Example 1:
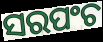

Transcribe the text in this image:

ସରପଂଚ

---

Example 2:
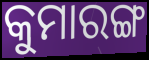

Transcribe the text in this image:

କୁମାରଙ୍ଗ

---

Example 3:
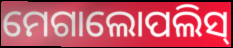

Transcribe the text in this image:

ମେଗାଲୋପଲିସ୍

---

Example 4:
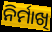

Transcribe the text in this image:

ନିର୍ମାଖି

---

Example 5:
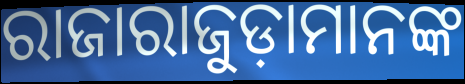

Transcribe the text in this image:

ରାଜାରାଜୁଡ଼ାମାନଙ୍କ